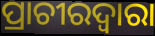
ପ୍ରାଚୀରଦ୍ୱାରା